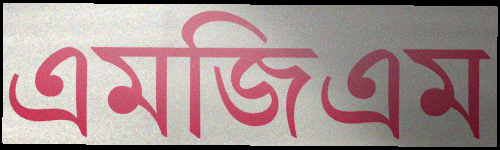
এমজিএম